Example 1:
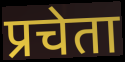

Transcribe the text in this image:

प्रचेता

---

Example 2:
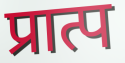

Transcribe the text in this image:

प्रात्प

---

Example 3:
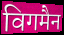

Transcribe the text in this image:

विगमैन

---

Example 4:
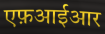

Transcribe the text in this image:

एफ़आईआर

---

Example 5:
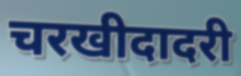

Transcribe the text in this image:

चरखीदादरी